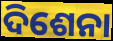
ଦିଶେନା